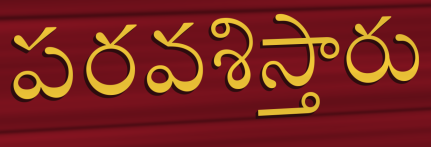
పరవశిస్తారు